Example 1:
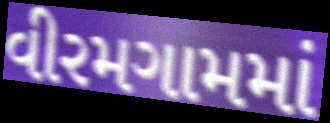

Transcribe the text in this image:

વીરમગામમાં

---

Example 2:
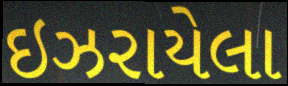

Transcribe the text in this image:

ઇઝરાયેલા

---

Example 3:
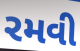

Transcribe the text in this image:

રમવી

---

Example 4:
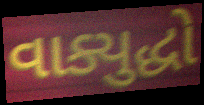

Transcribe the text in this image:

વાક્યુદ્ધો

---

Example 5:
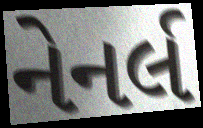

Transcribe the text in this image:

નેનર્લ